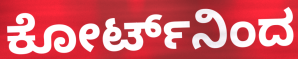
ಕೋರ್ಟ್‌ನಿಂದ